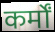
कर्मों